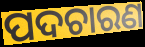
ପଦଚାରଣ